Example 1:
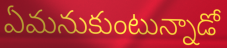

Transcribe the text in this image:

ఏమనుకుంటున్నాడో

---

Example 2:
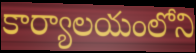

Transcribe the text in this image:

కార్యాలయంలోని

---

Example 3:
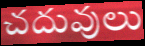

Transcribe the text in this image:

చదువులు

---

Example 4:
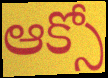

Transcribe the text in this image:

ఆక్సో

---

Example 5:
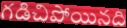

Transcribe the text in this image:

గడిచిపోయినది